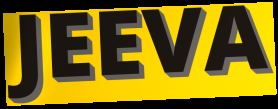
JEEVA